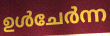
ഉൾചേർന്ന